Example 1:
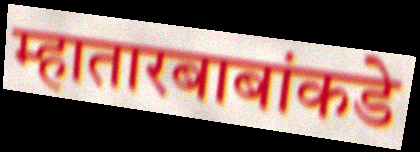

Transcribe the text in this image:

म्हातारबाबांकडे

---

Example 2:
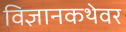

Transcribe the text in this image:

विज्ञानकथेवर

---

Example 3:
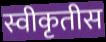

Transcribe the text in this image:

स्वीकृतीस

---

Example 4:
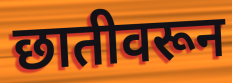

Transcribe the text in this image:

छातीवरून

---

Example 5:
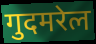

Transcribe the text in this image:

गुदमरेल